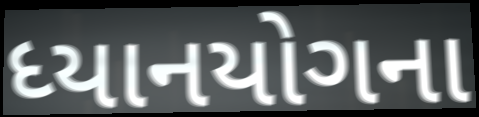
ધ્યાનયોગના